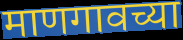
माणगावच्या